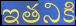
ఇతనికి